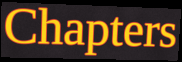
Chapters